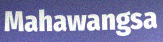
Mahawangsa